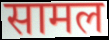
सामल